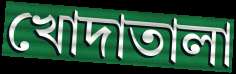
খোদাতালা